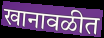
खानावळीत